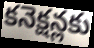
కనెక్షన్లకు